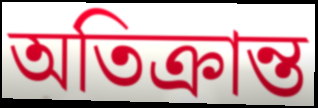
অতিক্ৰান্ত